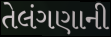
તેલંગણાની